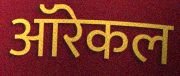
ऑरेकल